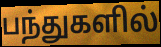
பந்துகளில்